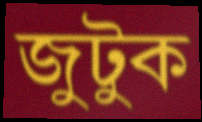
জুটুক